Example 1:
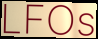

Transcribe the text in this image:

LFOs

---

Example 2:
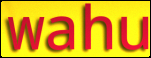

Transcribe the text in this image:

wahu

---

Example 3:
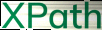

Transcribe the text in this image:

XPath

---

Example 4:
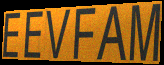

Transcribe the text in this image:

EEVFAM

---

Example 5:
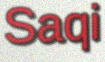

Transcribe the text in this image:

Saqi